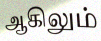
ஆகிலும்